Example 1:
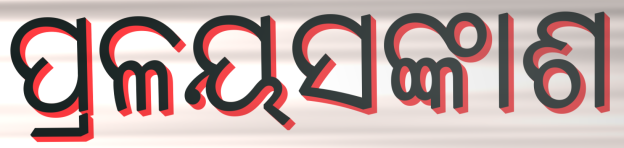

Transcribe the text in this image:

ପ୍ରଳୟସଙ୍କାଶ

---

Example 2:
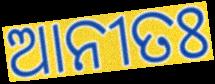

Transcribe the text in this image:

ଆନୀତଃ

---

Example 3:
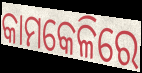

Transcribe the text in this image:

କାମକେଳିରେ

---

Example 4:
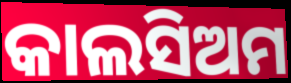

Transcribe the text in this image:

କାଲସିଅମ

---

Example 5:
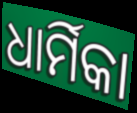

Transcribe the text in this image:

ଧାର୍ମିକା